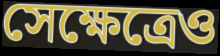
সেক্ষেত্রেও